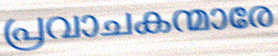
പ്രവാചകന്മാരേ